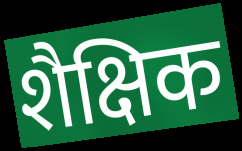
शैक्षिक